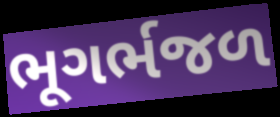
ભૂગર્ભજળ